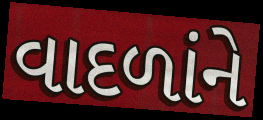
વાદળાંને